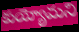
కుయ్యోమని